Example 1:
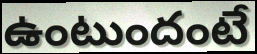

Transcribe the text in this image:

ఉంటుందంటే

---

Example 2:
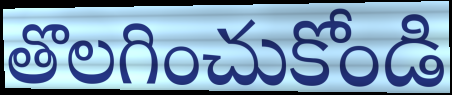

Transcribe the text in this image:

తొలగించుకోండి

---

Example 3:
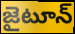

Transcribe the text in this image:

జైటూన్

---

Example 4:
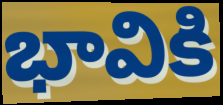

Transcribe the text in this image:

భావికి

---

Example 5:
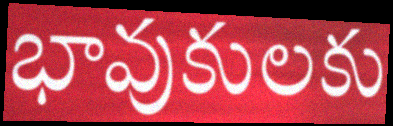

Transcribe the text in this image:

భావుకులకు